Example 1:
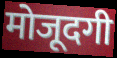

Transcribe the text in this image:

मोजूदगी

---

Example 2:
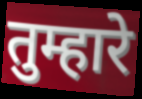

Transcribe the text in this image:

तुम्हारे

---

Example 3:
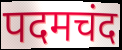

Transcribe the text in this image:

पदमचंद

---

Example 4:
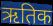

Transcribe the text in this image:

ऋतिक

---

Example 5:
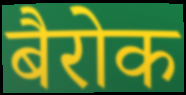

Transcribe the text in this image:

बैरोक